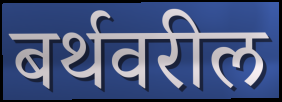
बर्थवरील